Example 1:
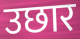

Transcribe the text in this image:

उछार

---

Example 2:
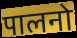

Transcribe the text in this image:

पालनो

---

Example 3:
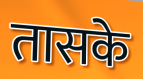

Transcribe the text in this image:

तासके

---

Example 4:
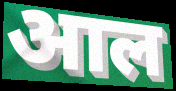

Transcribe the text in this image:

आल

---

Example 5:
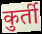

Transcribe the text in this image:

कुर्ती